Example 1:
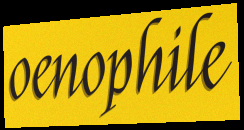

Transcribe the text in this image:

oenophile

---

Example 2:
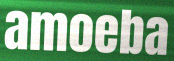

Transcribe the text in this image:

amoeba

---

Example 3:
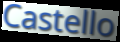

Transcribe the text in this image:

Castello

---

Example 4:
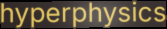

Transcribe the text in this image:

hyperphysics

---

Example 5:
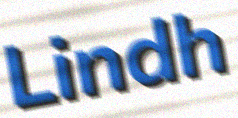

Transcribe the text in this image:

Lindh